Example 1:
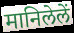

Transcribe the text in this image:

मानिलेलें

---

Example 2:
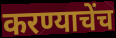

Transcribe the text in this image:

करण्याचेंच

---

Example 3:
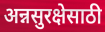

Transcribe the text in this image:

अन्नसुरक्षेसाठी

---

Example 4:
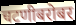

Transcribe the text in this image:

चटणीबरोबर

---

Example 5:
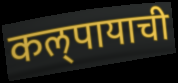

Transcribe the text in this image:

कल्पायाची